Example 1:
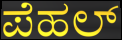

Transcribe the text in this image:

ಪೆಹಲ್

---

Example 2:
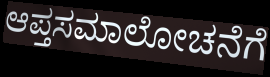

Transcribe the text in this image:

ಆಪ್ತಸಮಾಲೋಚನೆಗೆ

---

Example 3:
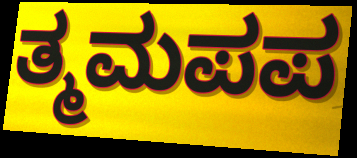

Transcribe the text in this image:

ತ್ಮಮಪಪ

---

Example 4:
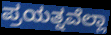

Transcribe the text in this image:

ಪ್ರಯತ್ನವೆಲ್ಲಾ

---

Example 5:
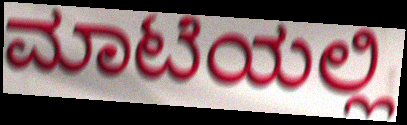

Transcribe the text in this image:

ಮಾಟೆಯಲ್ಲಿ